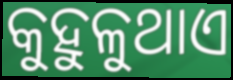
କୁହୁଳୁଥାଏ